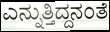
ಎನ್ನುತ್ತಿದ್ದನಂತೆ